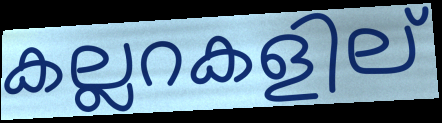
കല്ലറകളില്